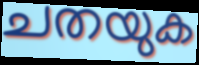
ചതയുക